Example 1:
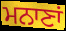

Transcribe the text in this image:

ਮਨਾਣਾਂ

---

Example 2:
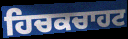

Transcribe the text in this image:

ਹਿਚਕਚਾਹਟ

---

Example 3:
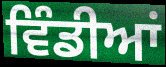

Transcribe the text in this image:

ਵਿੰਡੀਆਂ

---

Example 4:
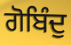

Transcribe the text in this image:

ਗੋਬਿੰਦੁ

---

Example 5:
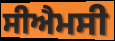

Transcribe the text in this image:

ਸੀਐਮਸੀ